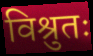
विश्रुतः